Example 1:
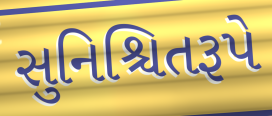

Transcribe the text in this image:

સુનિશ્ચિતરૂપે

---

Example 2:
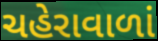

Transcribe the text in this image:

ચહેરાવાળાં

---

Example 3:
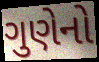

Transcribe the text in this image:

ગુણેનો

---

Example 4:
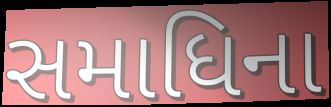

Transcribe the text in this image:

સમાધિના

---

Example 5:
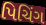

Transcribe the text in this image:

પિચિંગ